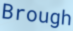
Brough